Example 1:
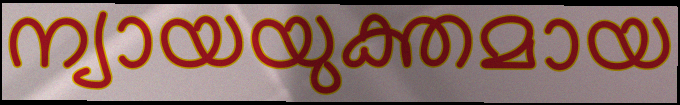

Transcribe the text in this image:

ന്യായയുക്തമായ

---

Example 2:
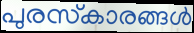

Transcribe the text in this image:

പുരസ്‌കാരങ്ങൾ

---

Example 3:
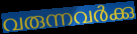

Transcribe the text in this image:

വരുന്നവർക്കു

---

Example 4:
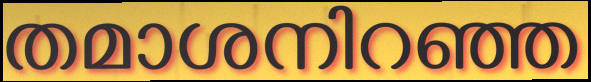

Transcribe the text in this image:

തമാശനിറഞ്ഞ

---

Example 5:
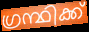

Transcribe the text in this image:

ഗ്രന്ഥിക്ക്